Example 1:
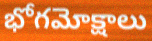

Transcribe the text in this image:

భోగమోక్షాలు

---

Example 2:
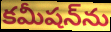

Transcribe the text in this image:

కమీషన్‌ను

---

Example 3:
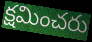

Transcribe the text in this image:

క్షమించరు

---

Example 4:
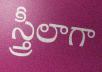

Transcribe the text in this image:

స్త్రీలాగా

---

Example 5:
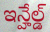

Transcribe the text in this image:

ఇన్హేల్డ్